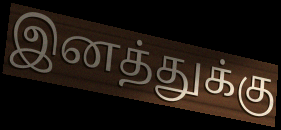
இனத்துக்கு